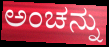
ಅಂಚನ್ನು